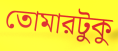
তোমারটুকু